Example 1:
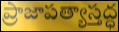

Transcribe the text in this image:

ప్రాజాపత్యాస్తద్ధ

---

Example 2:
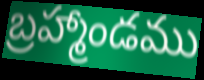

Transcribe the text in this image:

బ్రహ్మాండము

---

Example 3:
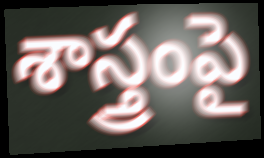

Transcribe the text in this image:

శాస్త్రంపై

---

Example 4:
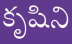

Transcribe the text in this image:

కృషిని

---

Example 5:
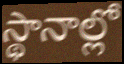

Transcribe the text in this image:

స్థానాల్లో